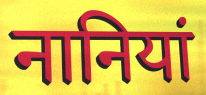
नानियां